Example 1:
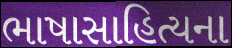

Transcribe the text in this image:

ભાષાસાહિત્યના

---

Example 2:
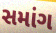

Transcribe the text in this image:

સમાંગ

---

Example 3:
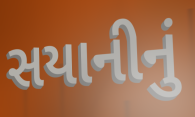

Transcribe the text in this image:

સયાનીનું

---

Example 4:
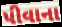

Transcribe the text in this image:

પીવાના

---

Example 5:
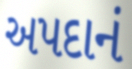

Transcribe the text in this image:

અપદાનં